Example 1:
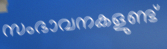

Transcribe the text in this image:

സംഭാവനകളുണ്ട്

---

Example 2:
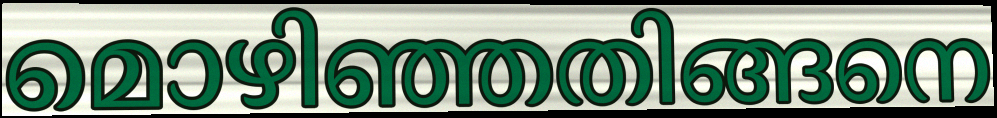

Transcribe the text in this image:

മൊഴിഞ്ഞതിങ്ങനെ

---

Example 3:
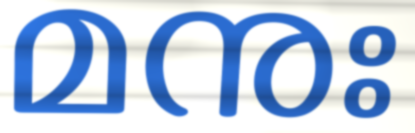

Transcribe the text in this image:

മനുഃ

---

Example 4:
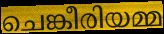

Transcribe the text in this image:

ചെങ്കീരിയമ്മ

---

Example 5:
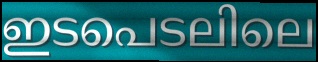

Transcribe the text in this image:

ഇടപെടലിലെ